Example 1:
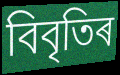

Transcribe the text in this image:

বিবৃতিৰ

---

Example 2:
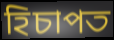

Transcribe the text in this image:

হিচাপত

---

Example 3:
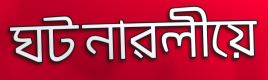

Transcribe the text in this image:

ঘটনাৱলীয়ে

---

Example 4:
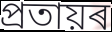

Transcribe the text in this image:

প্ৰতায়ৰ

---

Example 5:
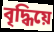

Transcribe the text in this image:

বৃদ্ধিয়ে